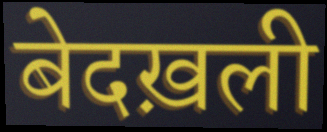
बेदख़ली